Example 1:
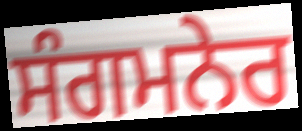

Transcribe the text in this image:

ਸੰਗਮਨੇਰ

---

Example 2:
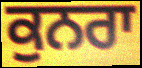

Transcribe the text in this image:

ਕੁਨਰਾ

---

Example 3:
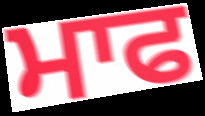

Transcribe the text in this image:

ਮਾਫ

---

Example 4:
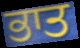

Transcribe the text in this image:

ਭਾਤ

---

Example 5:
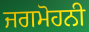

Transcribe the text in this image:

ਜਗਮੋਹਨੀ